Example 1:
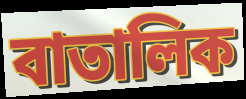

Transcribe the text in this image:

বাতালিক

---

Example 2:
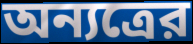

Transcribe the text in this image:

অন্যত্রের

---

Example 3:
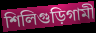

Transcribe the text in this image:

শিলিগুড়িগামী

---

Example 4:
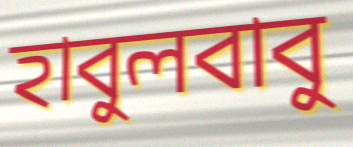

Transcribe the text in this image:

হাবুলবাবু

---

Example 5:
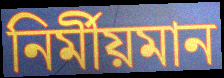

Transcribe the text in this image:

নির্মীয়মান